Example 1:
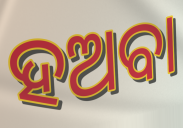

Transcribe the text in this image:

ହଅବା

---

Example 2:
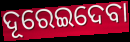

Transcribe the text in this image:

ଦୂରେଇଦେବା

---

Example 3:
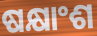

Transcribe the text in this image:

ଷକ୍ଷାଂଶ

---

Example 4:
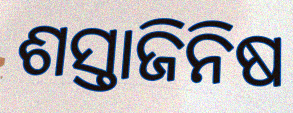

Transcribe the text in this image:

ଶସ୍ତାଜିନିଷ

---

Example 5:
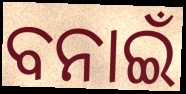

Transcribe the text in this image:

ବନାଇଁ